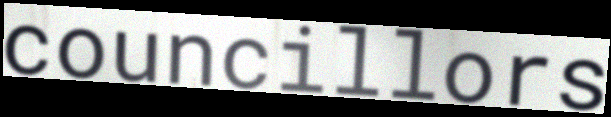
councillors